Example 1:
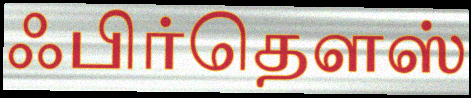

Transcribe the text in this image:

ஃபிர்தௌஸ்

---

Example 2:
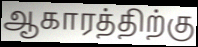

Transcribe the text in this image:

ஆகாரத்திற்கு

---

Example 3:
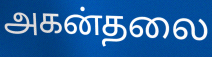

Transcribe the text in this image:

அகன்தலை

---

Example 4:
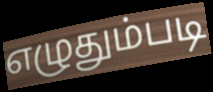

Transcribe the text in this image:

எழுதும்படி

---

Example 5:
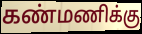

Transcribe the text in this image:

கண்மணிக்கு